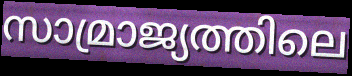
സാമ്രാജ്യത്തിലെ